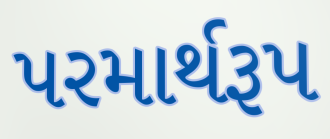
પરમાર્થરૂપ